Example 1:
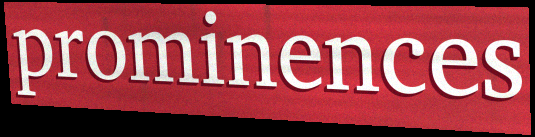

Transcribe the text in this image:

prominences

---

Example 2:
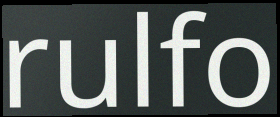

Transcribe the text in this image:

rulfo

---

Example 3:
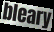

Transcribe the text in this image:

bleary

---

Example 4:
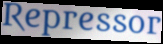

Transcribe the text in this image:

Repressor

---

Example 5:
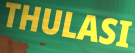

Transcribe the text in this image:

THULASI